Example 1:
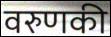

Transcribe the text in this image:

वरुणकी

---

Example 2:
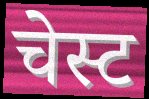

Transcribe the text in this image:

चेस्ट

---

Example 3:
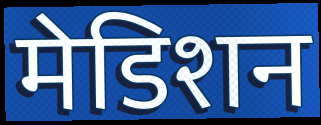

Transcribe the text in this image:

मेडिशन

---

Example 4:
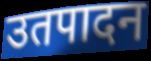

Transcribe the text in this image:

उतपादन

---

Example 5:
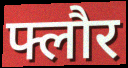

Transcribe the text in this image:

फ्लौर